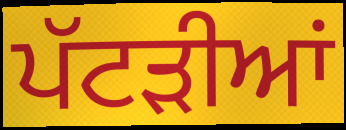
ਪੱਟੜੀਆਂ